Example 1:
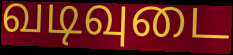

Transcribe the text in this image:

வடிவுடை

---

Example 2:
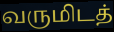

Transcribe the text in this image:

வருமிடத்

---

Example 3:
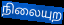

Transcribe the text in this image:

நிலையுற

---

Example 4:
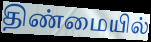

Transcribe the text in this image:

திண்மையில்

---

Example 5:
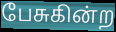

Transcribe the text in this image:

பேசுகின்ற